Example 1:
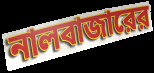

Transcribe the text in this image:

নালবাজারের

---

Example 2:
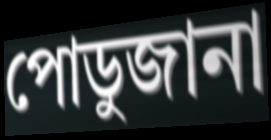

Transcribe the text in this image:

পোডুজানা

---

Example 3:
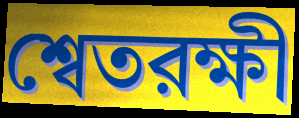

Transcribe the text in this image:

শ্বেতরক্ষী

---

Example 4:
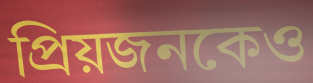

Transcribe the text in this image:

প্রিয়জনকেও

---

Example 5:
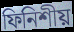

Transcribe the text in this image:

ফিনিশীয়